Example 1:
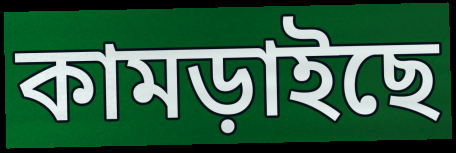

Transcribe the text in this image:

কামড়াইছে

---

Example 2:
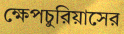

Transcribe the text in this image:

ক্ষেপচুরিয়াসের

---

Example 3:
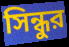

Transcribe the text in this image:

সিন্ধুর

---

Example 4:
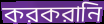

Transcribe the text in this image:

করকরানি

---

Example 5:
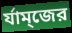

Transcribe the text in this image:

র্যাম্জের